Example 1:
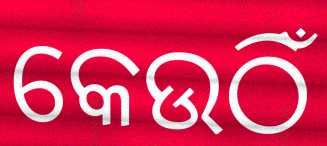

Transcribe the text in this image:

କେଉଠିଁ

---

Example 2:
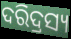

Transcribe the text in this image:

ଦରିଦ୍ରସ୍ୟ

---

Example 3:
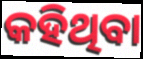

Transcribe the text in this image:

କହିଥିବା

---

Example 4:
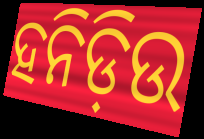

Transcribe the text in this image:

ହନିଡ଼ିଉ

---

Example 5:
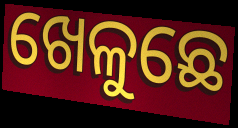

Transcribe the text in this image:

ଖେଳୁଛେ